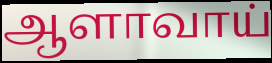
ஆளாவாய்